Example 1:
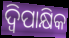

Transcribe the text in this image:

ଦ୍ବିପାକ୍ଷିକ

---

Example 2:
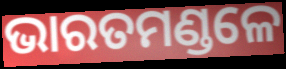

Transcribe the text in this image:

ଭାରତମଣ୍ଡଳେ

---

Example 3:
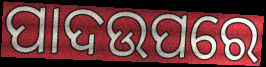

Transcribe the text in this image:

ପାଦଉପରେ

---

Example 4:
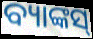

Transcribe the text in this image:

ବ୍ୟାଙ୍କସ୍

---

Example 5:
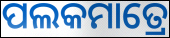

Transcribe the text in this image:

ପଲକମାତ୍ରେ